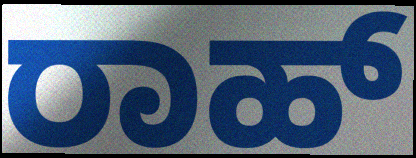
ರಾಹ್